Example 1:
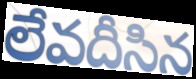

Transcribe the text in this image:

లేవదీసిన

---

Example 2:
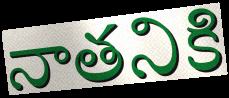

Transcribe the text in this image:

నాతనికి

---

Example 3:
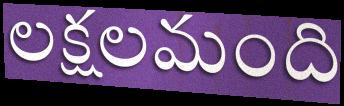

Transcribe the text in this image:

లక్షలమంది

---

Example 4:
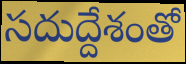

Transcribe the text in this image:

సదుద్దేశంతో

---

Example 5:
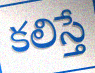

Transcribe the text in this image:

కలిస్తే